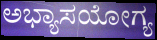
ಅಭ್ಯಾಸಯೋಗ್ಯ